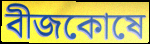
বীজকোষে